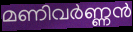
മണിവർണ്ണൻ